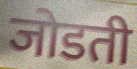
जोडती